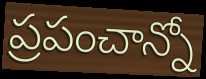
ప్రపంచాన్నో